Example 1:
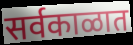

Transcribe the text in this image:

सर्वकाळात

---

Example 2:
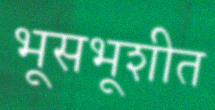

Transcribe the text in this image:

भूसभूशीत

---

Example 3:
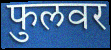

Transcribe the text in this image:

फुलवर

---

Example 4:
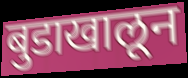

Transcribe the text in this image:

बुडाखालून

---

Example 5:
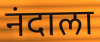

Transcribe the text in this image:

नंदाला